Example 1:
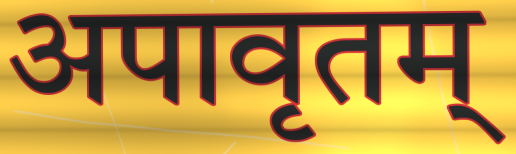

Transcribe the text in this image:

अपावृतम्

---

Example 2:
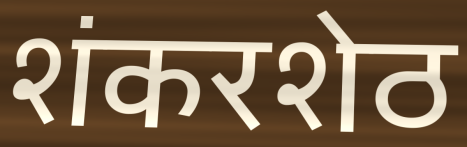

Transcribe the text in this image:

शंकरशेठ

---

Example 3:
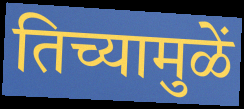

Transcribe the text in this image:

तिच्यामुळें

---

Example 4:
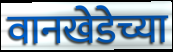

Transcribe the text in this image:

वानखेडेच्या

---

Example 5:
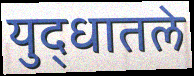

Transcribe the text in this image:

युद्धातले